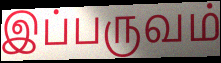
இப்பருவம்